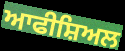
ਆਫੀਸ਼ਿਅਲ